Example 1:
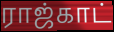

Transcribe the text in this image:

ராஜ்காட்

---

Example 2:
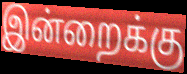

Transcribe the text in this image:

இன்றைக்கு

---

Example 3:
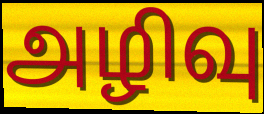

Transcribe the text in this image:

அழிவு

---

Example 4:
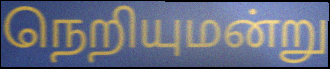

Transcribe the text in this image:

நெறியுமன்று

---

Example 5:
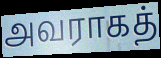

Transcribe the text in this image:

அவராகத்